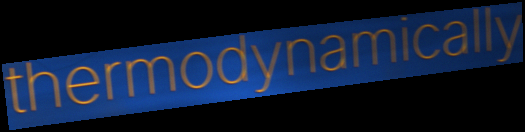
thermodynamically